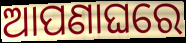
ଆପଣାଘରେ